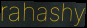
rahashy